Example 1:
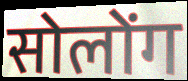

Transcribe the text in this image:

सोलोंग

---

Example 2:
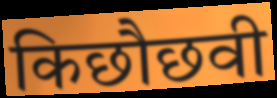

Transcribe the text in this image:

किछौछवी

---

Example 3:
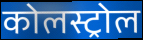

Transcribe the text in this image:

कोलस्ट्रोल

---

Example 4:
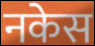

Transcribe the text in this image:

नकेस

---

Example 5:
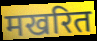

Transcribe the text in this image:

मखरित